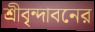
শ্রীবৃন্দাবনের